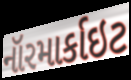
નૉરમાર્કાઇટ